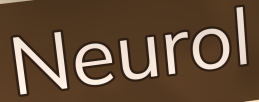
Neurol